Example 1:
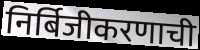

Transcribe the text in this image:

निर्बिजीकरणाची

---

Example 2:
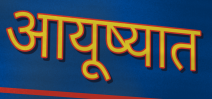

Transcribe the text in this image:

आयूष्यात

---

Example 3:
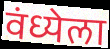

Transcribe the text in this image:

वंध्येला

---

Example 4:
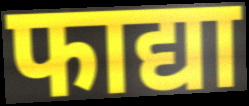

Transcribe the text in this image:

फाद्या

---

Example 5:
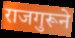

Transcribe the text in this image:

राजगुरूने